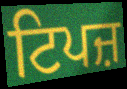
ਟਿਪਜ਼